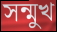
সন্মুখ